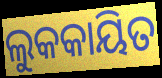
ଲୁକକାୟିତ